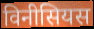
विनीसियस